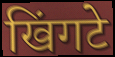
खिंगटे